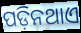
ପଡ଼ିନଥାଏ